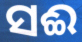
ସଈ